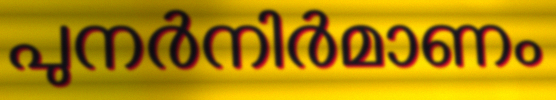
പുനർനിർമാണം